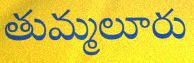
తుమ్మలూరు